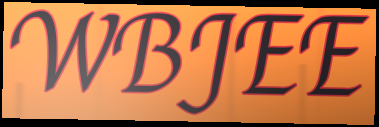
WBJEE